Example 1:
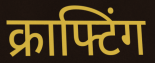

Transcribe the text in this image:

क्राफ्टिंग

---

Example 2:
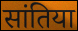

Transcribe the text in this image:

सांतिया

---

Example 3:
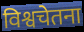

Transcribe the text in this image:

विश्वचेतना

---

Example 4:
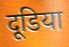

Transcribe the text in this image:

दूडिया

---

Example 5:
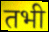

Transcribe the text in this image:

तभी